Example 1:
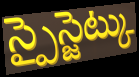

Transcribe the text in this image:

స్పైస్జెట్కు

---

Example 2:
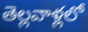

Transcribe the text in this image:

తెల్లవాళ్లలో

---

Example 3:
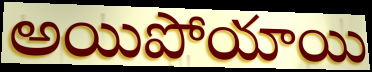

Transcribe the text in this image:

అయిపోయాయి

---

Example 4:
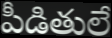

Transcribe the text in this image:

పీడితులే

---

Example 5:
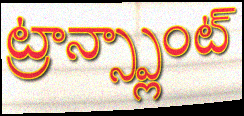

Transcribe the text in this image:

ట్రాన్స్ప్లాంట్